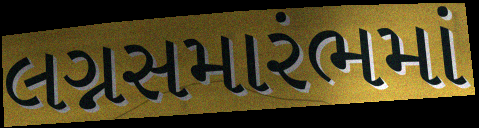
લગ્નસમારંભમાં